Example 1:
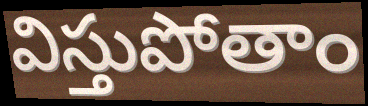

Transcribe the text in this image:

విస్తుపోతాం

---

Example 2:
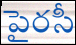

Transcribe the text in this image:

పైరసీ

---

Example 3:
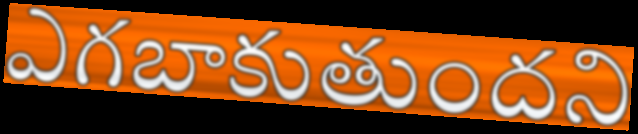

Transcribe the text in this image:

ఎగబాకుతుందని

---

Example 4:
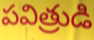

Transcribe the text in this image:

పవిత్రుడి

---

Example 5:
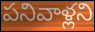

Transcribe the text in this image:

పనివాళ్లని